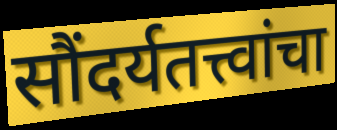
सौंदर्यतत्त्वांचा